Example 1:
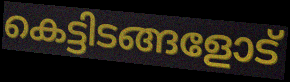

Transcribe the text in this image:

കെട്ടിടങ്ങളോട്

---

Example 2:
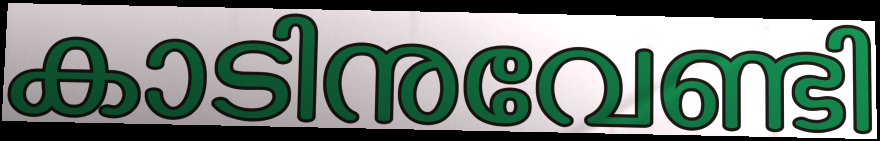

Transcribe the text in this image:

കാടിനുവേണ്ടി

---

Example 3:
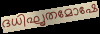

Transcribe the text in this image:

ദധിഘൃതമോഷേ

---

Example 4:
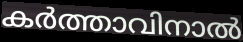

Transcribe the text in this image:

കർത്താവിനാൽ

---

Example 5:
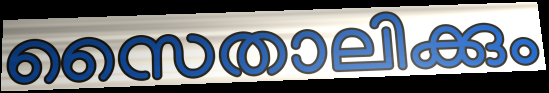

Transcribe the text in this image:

സൈതാലിക്കും